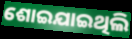
ଶୋଇଯାଇଥିଲି